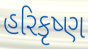
હરિકૃષ્ણ